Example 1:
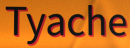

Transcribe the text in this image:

Tyache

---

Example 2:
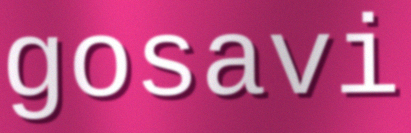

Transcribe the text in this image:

gosavi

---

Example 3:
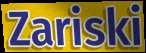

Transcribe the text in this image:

Zariski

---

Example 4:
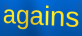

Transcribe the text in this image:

agains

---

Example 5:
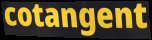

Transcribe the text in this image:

cotangent